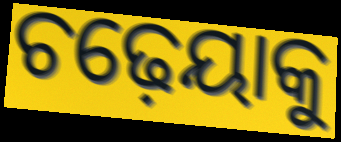
ଚଢ଼େୟାକୁ